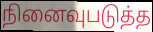
நினைவுபடுத்த